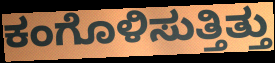
ಕಂಗೊಳಿಸುತ್ತಿತ್ತು